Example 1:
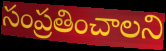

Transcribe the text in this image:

సంప్రతించాలని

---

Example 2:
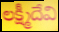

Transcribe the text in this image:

లక్ష్మీదేవి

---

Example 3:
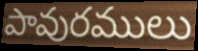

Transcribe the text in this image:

పావురములు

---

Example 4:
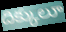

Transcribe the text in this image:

దిక్కులూ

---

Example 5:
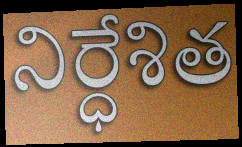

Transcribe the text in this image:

నిర్ధేశిత